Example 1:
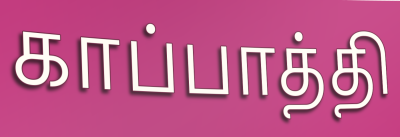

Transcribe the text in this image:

காப்பாத்தி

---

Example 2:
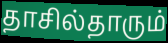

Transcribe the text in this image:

தாசில்தாரும்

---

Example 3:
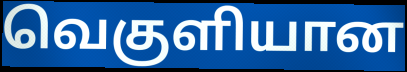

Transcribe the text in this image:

வெகுளியான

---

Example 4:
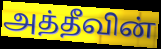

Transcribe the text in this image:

அத்தீவின்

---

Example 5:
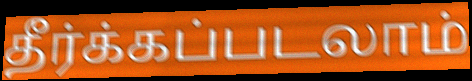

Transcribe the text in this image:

தீர்க்கப்படலாம்